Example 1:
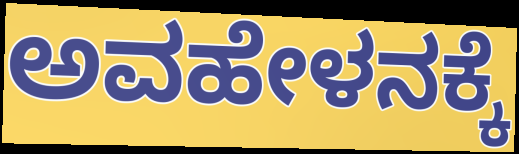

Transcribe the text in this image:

ಅವಹೇಳನಕ್ಕೆ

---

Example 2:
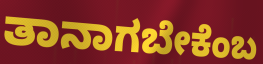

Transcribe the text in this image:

ತಾನಾಗಬೇಕೆಂಬ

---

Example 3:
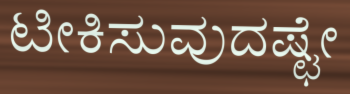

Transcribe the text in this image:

ಟೀಕಿಸುವುದಷ್ಟೇ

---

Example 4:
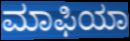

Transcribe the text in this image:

ಮಾಫಿಯಾ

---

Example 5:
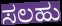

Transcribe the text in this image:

ಸಲಹು